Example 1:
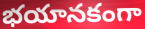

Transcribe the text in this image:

భయానకంగా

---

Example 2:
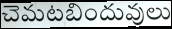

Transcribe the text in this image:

చెమటబిందువులు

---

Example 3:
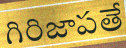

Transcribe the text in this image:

గిరిజాపతే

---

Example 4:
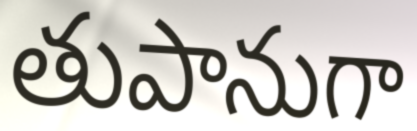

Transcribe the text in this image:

తుపానుగా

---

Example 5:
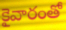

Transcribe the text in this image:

కైవారంతో